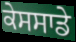
ਕੇਸਸਾਡੇ